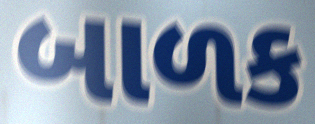
બાળક